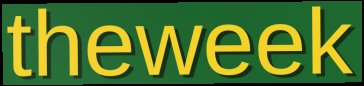
theweek